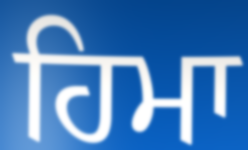
ਹਿਮਾ